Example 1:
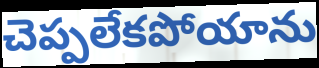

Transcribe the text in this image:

చెప్పలేకపోయాను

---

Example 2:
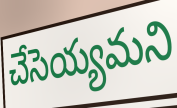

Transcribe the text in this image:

చేసెయ్యమని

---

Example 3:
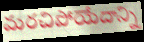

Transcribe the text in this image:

మరచిపోయేదాన్ని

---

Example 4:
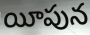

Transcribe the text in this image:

యీపున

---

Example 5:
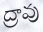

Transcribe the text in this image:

ద్రావు